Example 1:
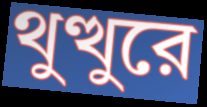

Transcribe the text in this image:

থুত্থুরে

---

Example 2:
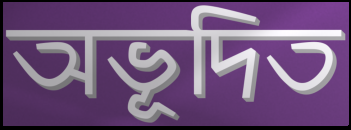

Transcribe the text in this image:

অভূদিত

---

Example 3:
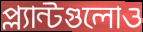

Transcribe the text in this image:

প্ল্যান্টগুলোও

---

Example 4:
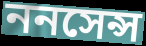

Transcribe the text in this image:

ননসেন্স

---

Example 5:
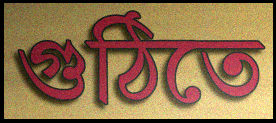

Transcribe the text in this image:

গুঠিতে